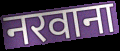
नरवाना